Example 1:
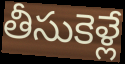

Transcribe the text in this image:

తీసుకెళ్లే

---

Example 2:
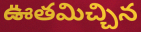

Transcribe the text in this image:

ఊతమిచ్చిన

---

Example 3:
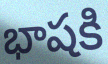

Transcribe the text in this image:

భాషకి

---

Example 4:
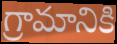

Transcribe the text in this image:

గ్రామానికి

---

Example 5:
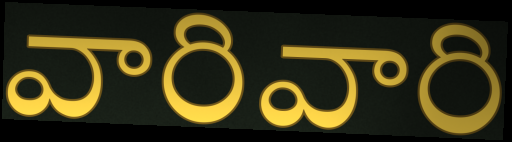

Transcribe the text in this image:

వారివారి